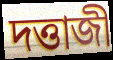
দত্তাজী